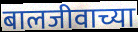
बालजीवाच्या